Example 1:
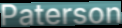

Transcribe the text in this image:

Paterson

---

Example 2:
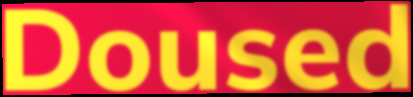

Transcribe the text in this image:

Doused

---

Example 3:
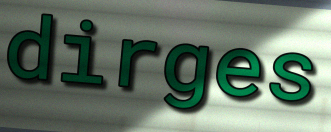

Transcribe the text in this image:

dirges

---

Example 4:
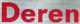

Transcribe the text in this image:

Deren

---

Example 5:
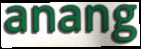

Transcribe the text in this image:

anang